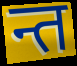
न्त